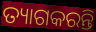
ତ୍ୟାଗକରନ୍ତି